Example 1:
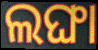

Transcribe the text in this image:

ଲଙ୍ଘା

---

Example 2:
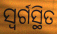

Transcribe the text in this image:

ସ୍ୱର୍ଗସ୍ଥିତ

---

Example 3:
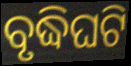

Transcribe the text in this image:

ବୃଦ୍ଧିଘଟି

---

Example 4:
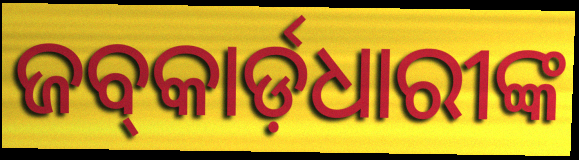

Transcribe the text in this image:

ଜବ୍‍କାର୍ଡ଼ଧାରୀଙ୍କ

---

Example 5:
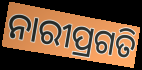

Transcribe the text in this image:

ନାରୀପ୍ରଗତି